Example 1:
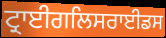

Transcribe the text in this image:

ਟ੍ਰਾਈਗਲਿਸਰਾਈਡਸ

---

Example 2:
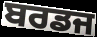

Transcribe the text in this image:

ਬਰਡਜ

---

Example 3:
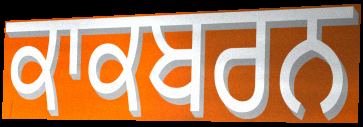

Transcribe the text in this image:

ਕਾਕਬਰਨ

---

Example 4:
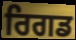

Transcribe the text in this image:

ਰਿਗਡ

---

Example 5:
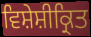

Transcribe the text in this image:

ਵਿਸ਼ੇਸ਼ੀਕ੍ਰਿਤ